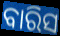
ବାରିସ